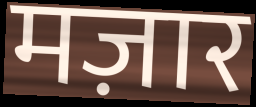
मज़ार